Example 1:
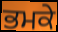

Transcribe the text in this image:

ਭਮਕੇ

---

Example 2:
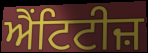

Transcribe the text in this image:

ਐਂਟਿਟੀਜ਼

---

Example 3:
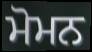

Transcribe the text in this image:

ਮੋਮਨ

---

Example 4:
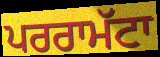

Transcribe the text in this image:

ਪਰਰਾਮੱਟਾ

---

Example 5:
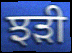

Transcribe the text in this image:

ਝੜੀ